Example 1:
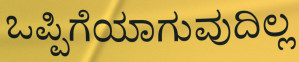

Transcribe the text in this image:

ಒಪ್ಪಿಗೆಯಾಗುವುದಿಲ್ಲ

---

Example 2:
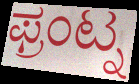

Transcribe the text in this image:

ಫ್ರಂಟ್ನ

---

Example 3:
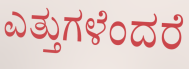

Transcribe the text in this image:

ಎತ್ತುಗಳೆಂದರೆ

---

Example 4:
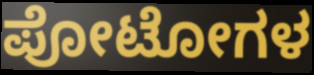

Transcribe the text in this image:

ಪೋಟೋಗಳ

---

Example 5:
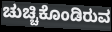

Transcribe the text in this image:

ಚುಚ್ಚಿಕೊಂಡಿರುವ